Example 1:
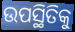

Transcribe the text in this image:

ଉପସ୍ଥିତିକୁ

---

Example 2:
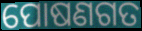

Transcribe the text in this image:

ପୋଷଣଗତ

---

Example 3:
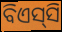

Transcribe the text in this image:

ବିଏସ୍‌ସି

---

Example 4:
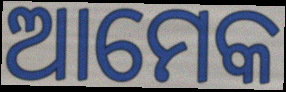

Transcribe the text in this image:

ଆମେକ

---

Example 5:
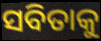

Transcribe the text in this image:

ସବିତାକୁ